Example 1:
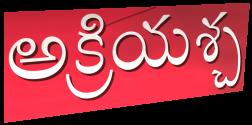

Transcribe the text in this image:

అక్రియశ్చ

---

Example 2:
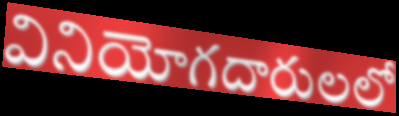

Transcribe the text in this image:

వినియోగదారులలో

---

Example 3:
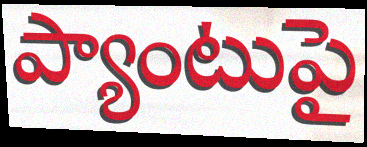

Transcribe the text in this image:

ప్యాంటుపై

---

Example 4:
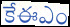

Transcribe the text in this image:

కేఈఎం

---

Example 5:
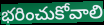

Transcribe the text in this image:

భరించుకోవాలి